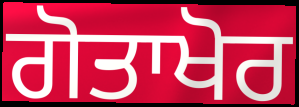
ਗੋਤਾਖੋਰ